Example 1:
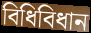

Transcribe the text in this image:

বিধিবিধান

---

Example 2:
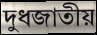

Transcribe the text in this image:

দুধজাতীয়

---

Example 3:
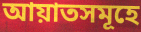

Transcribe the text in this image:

আয়াতসমূহে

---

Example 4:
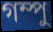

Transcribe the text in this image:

গম্পু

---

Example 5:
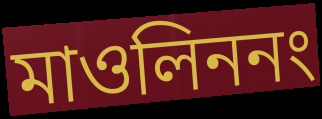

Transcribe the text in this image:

মাওলিননং